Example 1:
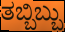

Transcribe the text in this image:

ತಬ್ಬಿಬ್ಬು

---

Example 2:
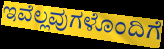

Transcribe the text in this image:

ಇವೆಲ್ಲವುಗಳೊಂದಿಗೆ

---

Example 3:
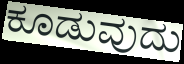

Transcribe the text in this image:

ಕೂಡುವುದು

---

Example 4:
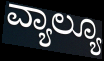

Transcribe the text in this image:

ವ್ಯಾಲ್ಯೂ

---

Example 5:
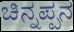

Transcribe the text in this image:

ಚಿನ್ನಪ್ಪನ